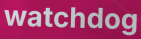
watchdog